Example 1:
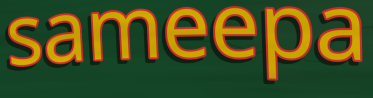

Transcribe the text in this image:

sameepa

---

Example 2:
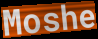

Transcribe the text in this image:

Moshe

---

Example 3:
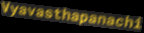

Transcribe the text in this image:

Vyavasthapanachi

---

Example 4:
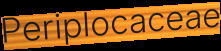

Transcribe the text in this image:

Periplocaceae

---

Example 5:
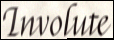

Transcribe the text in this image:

Involute